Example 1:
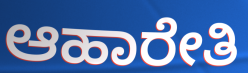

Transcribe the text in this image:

ಆಹಾರೇತಿ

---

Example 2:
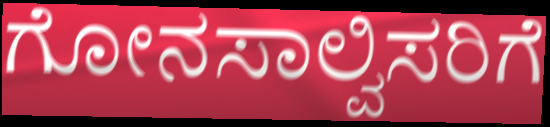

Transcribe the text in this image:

ಗೋನಸಾಲ್ವಿಸರಿಗೆ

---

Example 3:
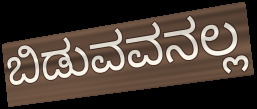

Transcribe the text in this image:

ಬಿಡುವವನಲ್ಲ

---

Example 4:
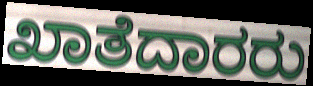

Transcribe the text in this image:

ಖಾತೆದಾರರು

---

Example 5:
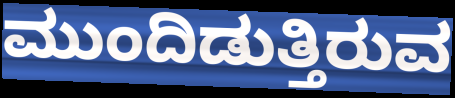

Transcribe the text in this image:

ಮುಂದಿಡುತ್ತಿರುವ